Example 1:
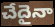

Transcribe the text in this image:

చేదైనా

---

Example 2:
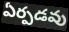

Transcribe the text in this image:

ఏర్పడవు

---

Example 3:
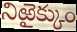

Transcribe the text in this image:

నిఱైక్కుం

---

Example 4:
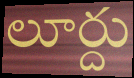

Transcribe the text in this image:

లూర్దు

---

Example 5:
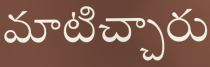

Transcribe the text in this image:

మాటిచ్చారు